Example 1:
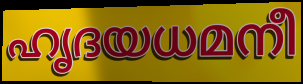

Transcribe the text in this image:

ഹൃദയധമനീ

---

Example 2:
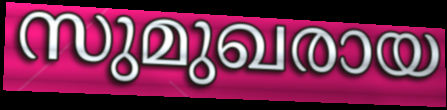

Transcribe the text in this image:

സുമുഖരായ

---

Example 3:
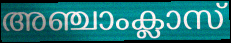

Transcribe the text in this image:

അഞ്ചാംക്ലാസ്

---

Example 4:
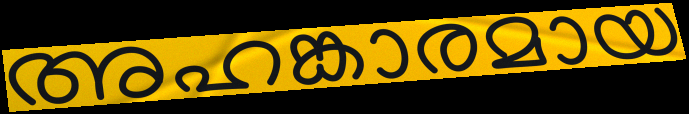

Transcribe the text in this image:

അഹങ്കാരമായ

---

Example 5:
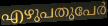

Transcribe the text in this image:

എഴുപതുപേർ